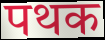
पथक